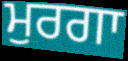
ਮੁਰਗਾ